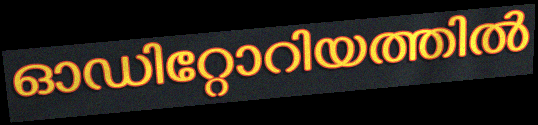
ഓഡിറ്റോറിയത്തിൽ